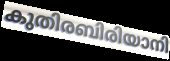
കുതിരബിരിയാനി